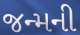
જન્મની